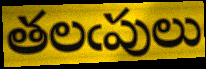
తలఁపులు